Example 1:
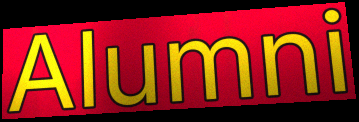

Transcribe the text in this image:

Alumni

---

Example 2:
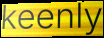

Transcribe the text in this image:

keenly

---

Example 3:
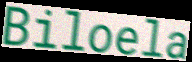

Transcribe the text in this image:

Biloela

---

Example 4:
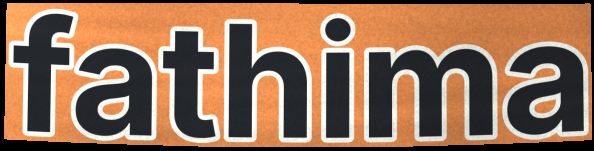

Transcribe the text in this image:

fathima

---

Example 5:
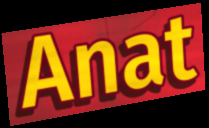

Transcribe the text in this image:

Anat